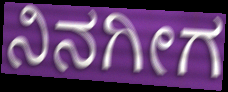
ನಿನಗೀಗ